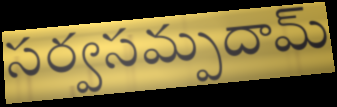
సర్వసమ్పదామ్